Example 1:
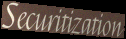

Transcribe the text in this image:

Securitization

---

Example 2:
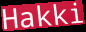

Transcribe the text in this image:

Hakki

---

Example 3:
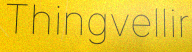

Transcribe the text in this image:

Thingvellir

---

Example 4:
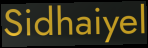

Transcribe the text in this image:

Sidhaiyel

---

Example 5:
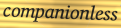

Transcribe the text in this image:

companionless